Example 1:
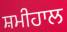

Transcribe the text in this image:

ਸ਼ਮੀਹਾਲ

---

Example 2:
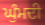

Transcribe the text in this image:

ਘੁੰਮਦੀ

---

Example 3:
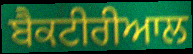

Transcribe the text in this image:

ਬੈਕਟੀਰੀਆਲ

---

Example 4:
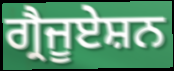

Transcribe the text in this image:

ਗ੍ਰੈਜੂਏਸ਼ਨ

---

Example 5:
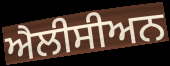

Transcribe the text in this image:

ਐਲੀਸੀਅਨ